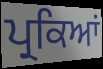
ਪ੍ਰਕਿਆਂ